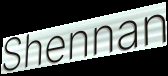
Shennan